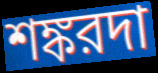
শঙ্করদা